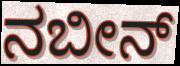
ನಬೀನ್